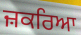
ਜ਼ਕਰਿਆ